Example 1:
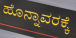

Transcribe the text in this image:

ಹೊನ್ನಾವರಕ್ಕೆ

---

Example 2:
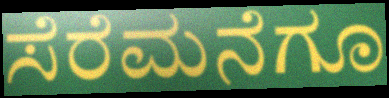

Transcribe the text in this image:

ಸೆರೆಮನೆಗೂ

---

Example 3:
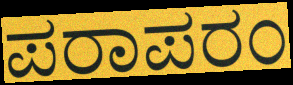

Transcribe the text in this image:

ಪರಾಪರಂ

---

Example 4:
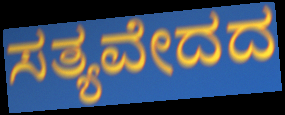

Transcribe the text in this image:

ಸತ್ಯವೇದದ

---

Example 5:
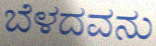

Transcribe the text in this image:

ಬೆಳದವನು